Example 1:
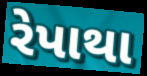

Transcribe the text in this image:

રેપાથા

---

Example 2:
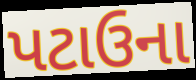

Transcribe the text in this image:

પટાઉના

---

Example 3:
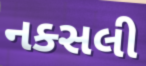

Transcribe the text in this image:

નક્સલી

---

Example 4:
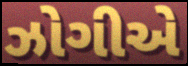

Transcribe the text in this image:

ઝોગીએ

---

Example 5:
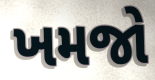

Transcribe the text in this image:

ખમજો